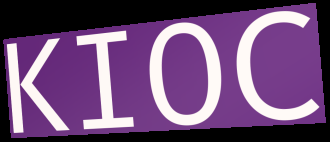
KIOC